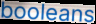
booleans